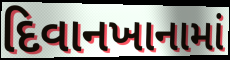
દિવાનખાનામાં